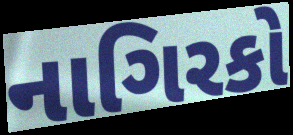
નાગિરકો